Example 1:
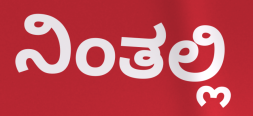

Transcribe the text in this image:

ನಿಂತಲ್ಲಿ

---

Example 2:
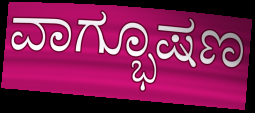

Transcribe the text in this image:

ವಾಗ್ಭೂಷಣ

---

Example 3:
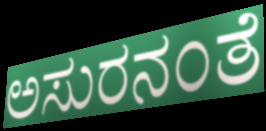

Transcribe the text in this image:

ಅಸುರನಂತೆ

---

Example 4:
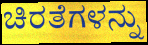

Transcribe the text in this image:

ಚಿರತೆಗಳನ್ನು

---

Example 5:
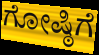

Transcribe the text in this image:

ಗೋಷ್ಠಿಗೆ